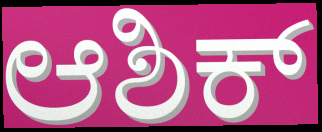
ಆಶಿಕ್